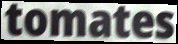
tomates